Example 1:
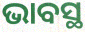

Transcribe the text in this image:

ଭାବସ୍ଥ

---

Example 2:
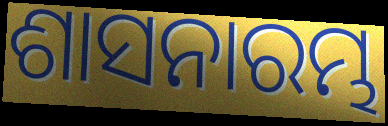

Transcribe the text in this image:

ଶାସନାରମ୍ଭ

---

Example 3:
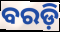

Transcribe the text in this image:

ବରଡ଼ି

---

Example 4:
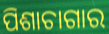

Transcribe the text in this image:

ପିଶାଚାଗାର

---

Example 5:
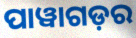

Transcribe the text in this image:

ପାୱାଗଡ଼ର